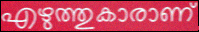
എഴുത്തുകാരാണ്